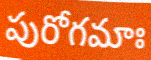
పురోగమాః